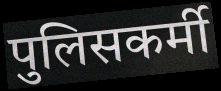
पुलिसकर्मी